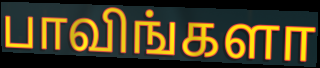
பாவிங்களா